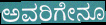
ಅವರಿಗೇನೂ